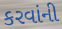
કરવાંની